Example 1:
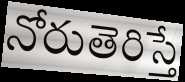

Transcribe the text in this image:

నోరుతెరిస్తే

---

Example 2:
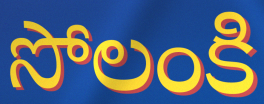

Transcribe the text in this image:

సోలంకి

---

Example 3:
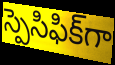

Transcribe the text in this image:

స్పెసిఫిక్‌గా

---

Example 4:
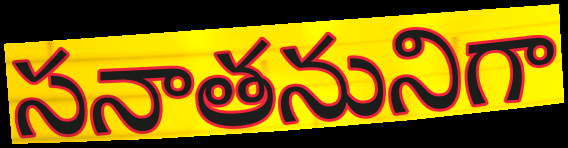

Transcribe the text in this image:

సనాతనునిగా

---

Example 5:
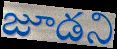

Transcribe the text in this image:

జూడని